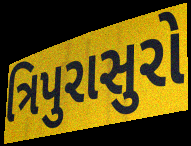
ત્રિપુરાસુરો